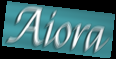
Aiora